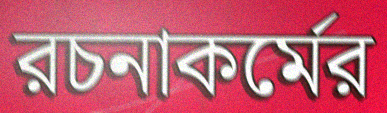
রচনাকর্মের